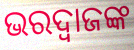
ଭରଦ୍ବାଜଙ୍କ